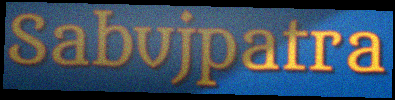
Sabujpatra